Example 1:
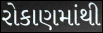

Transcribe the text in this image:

રોકાણમાંથી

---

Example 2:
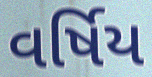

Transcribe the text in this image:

વર્ષિય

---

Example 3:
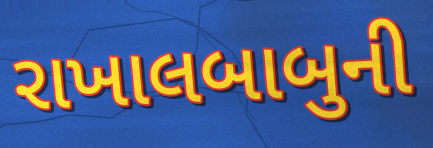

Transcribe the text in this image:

રાખાલબાબુની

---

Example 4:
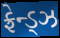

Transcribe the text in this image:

ફ્રેન્ડ્ઝ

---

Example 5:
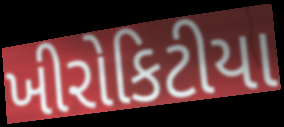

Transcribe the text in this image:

ખીરોકિટીયા